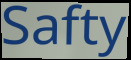
Safty